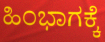
ಹಿಂಭಾಗಕ್ಕೆ